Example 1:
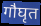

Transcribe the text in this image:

गौघृत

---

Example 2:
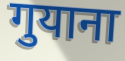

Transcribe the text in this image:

गुयाना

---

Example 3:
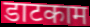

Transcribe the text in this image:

डाटकाम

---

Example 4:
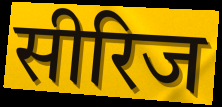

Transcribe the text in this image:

सीरिज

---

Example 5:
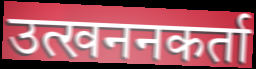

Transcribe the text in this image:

उत्खननकर्ता